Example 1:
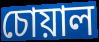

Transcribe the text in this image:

চোয়াল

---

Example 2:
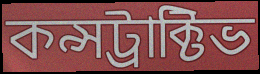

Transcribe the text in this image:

কন্সট্রাক্টিভ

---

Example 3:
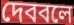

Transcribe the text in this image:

দেববলে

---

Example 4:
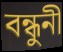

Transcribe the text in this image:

বন্ধুনী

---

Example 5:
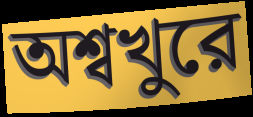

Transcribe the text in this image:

অশ্বখুরে